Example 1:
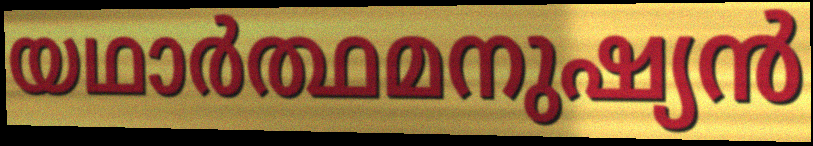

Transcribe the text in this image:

യഥാർത്ഥമനുഷ്യൻ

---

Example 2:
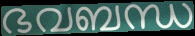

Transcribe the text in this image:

ഭവബന്ധ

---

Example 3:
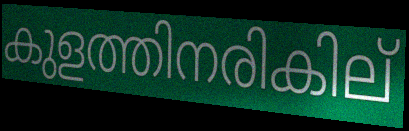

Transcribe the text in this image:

കുളത്തിനരികില്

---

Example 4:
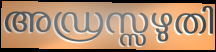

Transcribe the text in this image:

അഡ്രസ്സഴുതി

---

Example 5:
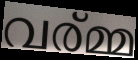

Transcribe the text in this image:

വര്മ്മ